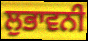
ਲੁਭਾਵਨੀ